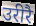
उरीरै